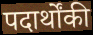
पदार्थोंकी